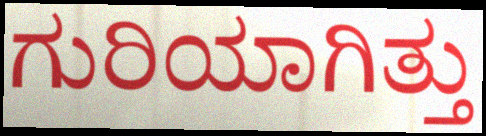
ಗುರಿಯಾಗಿತ್ತು